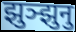
झुञ्झुनु